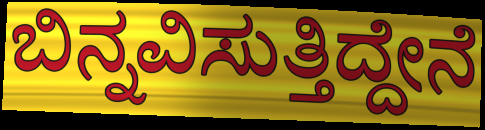
ಬಿನ್ನವಿಸುತ್ತಿದ್ದೇನೆ